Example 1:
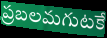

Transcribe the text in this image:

ప్రబలమగుటకే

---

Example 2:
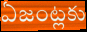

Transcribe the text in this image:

ఏజంట్లకు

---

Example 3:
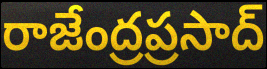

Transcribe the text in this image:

రాజేంద్రప్రసాద్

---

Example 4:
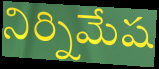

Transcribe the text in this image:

నిర్నిమేష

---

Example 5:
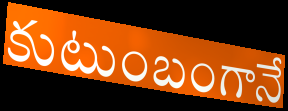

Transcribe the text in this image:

కుటుంబంగానే